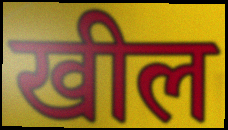
खील